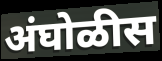
अंघोळीस